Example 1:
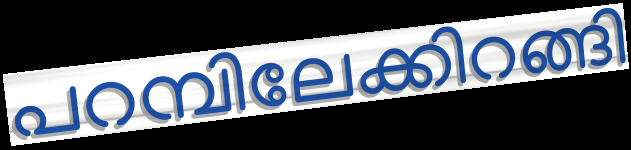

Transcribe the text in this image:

പറമ്പിലേക്കിറങ്ങി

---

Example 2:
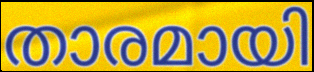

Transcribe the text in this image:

താരമായി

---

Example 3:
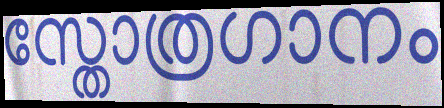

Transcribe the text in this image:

സ്തോത്രഗാനം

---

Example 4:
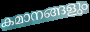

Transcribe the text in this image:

കമാനങ്ങളും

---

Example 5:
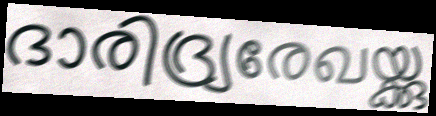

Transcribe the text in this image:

ദാരിദ്ര്യരേഖയ്ക്കു